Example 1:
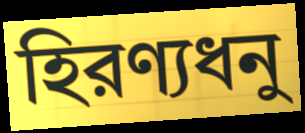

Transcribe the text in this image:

হিরণ্যধনু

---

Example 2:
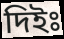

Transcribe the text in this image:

দিইঃ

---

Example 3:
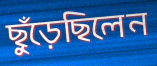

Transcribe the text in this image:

ছুঁড়েছিলেন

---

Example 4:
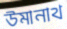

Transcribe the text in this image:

উমানাথ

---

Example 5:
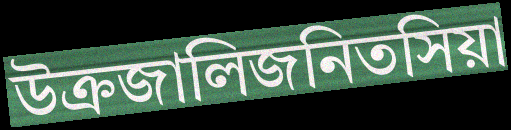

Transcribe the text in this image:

উক্রজালিজনিতসিয়া